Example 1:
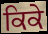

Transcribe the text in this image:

ਕਿਕੇ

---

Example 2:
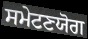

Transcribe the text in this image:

ਸਮੇਟਣਯੋਗ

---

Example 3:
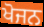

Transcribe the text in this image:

ਖੋਜਨ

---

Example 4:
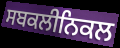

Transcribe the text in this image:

ਸਬਕਲੀਨਿਕਲ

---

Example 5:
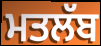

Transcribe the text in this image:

ਮਤਲੱਬ